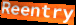
Reentry